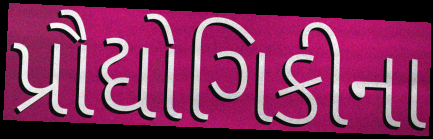
પ્રૌદ્યોગિકીના